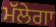
ਮੱਲੇਗਾ